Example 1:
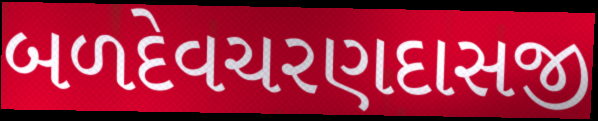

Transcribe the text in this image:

બળદેવચરણદાસજી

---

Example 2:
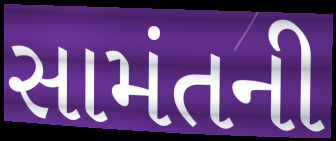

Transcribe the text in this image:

સામંતની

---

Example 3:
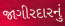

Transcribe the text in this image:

જાગીરદારનું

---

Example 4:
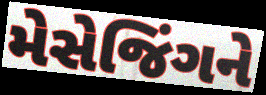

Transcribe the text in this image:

મેસેજિંગને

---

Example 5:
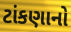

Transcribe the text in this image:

ટાંકણાનો